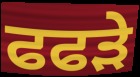
ਫਫਡ਼ੇ